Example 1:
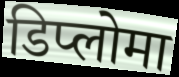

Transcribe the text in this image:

डिप्लोमा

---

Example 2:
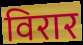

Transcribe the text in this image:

विरार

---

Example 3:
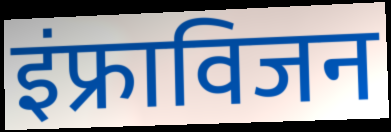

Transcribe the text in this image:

इंफ्राविजन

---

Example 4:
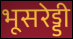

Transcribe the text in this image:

भूसरेड्डी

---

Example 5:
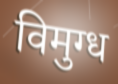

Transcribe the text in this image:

विमुग्ध